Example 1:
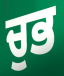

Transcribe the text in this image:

ਚੁਭ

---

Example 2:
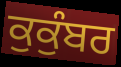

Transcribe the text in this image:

ਕੁਕੁੰਬਰ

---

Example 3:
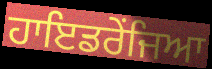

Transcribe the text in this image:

ਹਾਇਡਰੇਂਜਿਆ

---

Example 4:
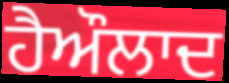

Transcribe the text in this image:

ਹੈਔਲਾਦ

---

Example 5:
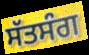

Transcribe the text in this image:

ਸੱਤਸੰਗ